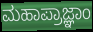
ಮಹಾಪ್ರಾಜ್ಞಾಂ